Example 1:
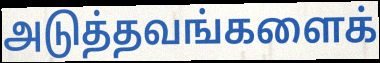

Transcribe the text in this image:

அடுத்தவங்களைக்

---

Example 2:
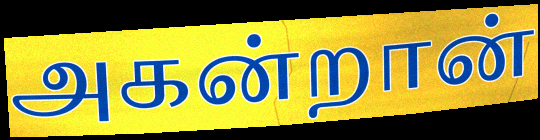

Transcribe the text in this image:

அகன்றான்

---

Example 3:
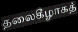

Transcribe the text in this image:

தலைகீழாகத்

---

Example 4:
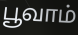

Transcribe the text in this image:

பூவாம்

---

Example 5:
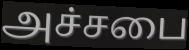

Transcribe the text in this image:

அச்சபை